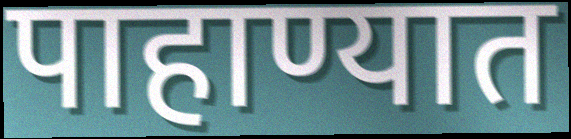
पाहाण्यात